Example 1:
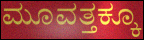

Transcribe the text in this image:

ಮೂವತ್ತಕ್ಕೂ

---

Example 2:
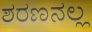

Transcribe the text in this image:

ಶರಣನಲ್ಲ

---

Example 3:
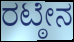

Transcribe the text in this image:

ರಟ್ಠೇನ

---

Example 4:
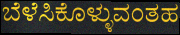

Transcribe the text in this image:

ಬೆಳೆಸಿಕೊಳ್ಳುವಂತಹ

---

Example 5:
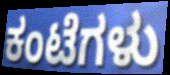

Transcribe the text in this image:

ಕಂಟೆಗಳು